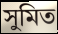
সুমিত